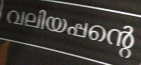
വലിയപ്പന്റെ